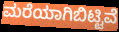
ಮರೆಯಾಗಿಬಿಟ್ಟಿವೆ